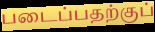
படைப்பதற்குப்